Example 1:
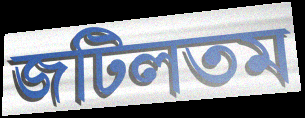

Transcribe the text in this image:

জটিলতম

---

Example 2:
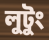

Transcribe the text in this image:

লুটুং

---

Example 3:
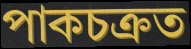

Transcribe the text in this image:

পাকচক্ৰত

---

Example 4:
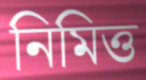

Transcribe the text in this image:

নিমিত্ত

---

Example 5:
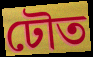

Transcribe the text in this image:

ঢৌত